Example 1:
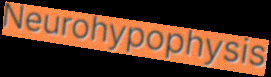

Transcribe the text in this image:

Neurohypophysis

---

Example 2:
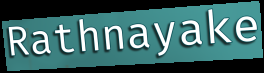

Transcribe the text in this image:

Rathnayake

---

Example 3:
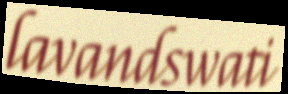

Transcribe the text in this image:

lavandswati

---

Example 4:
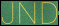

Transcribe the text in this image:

JND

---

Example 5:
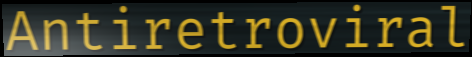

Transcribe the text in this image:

Antiretroviral